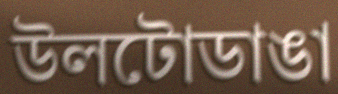
উলটোডাঙা